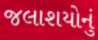
જલાશયોનું